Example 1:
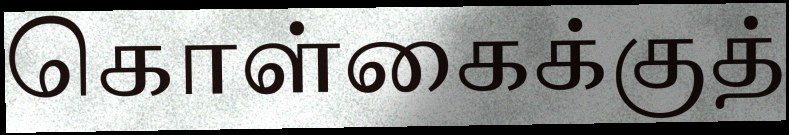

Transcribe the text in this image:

கொள்கைக்குத்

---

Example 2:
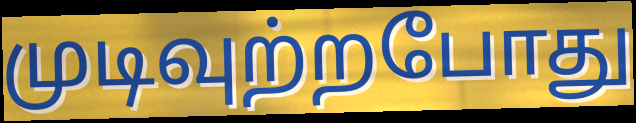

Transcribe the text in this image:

முடிவுற்றபோது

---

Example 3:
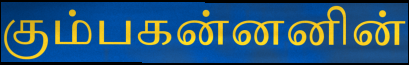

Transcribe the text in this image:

கும்பகன்னனின்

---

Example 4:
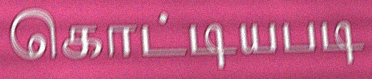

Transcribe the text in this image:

கொட்டியபடி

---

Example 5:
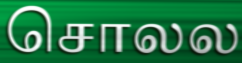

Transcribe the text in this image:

சொலல